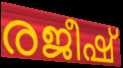
രജീഷ്